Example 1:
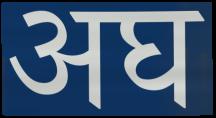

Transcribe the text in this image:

अघ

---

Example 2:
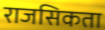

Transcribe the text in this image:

राजसिकता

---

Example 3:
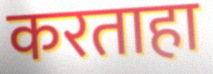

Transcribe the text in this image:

करताहा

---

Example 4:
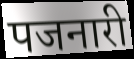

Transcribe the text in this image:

पजनारी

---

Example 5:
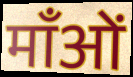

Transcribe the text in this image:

माँओं